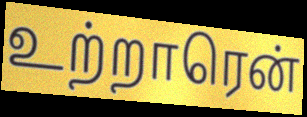
உற்றாரென்